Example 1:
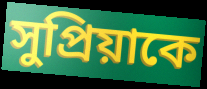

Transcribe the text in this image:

সুপ্রিয়াকে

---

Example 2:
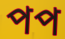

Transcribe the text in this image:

পপ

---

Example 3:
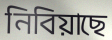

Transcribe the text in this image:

নিবিয়াছে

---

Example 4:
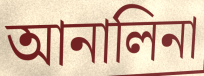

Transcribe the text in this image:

আনালিনা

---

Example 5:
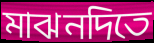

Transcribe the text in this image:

মাঝনদিতে